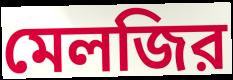
মেলজির